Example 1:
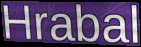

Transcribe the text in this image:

Hrabal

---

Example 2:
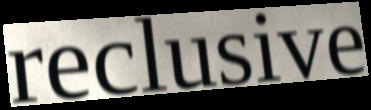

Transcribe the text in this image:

reclusive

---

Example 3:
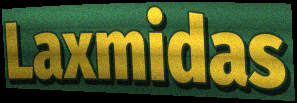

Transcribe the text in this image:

Laxmidas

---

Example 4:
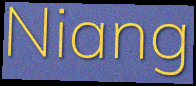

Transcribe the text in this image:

Niang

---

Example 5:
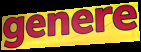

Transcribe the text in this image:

genere